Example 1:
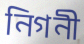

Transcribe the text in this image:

নিগনী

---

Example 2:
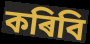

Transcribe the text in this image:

কৰিবি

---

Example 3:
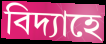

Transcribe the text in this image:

বিদ্যাহে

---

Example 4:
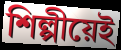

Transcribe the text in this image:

শিল্পীয়েই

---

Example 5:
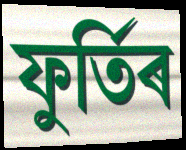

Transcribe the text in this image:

ফুৰ্তিৰ